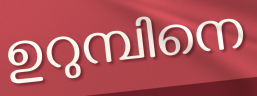
ഉറുമ്പിനെ